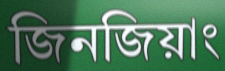
জিনজিয়াং